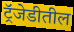
ट्रॅजेडीतील